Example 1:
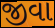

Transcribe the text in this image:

જીવા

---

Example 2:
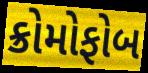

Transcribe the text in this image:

ક્રોમોફોબ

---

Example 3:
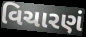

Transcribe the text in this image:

વિચારણં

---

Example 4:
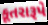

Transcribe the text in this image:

કૂતરારૂપે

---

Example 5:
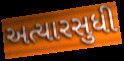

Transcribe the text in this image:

અત્યારસુધી